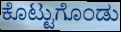
ಕೊಟ್ಟುಗೊಂಡು